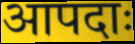
आपदाः